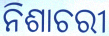
ନିଶାଚରୀ